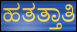
ಹತತ್ತಾತಿ